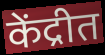
केंद्रीत